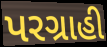
પરગ્રાહી